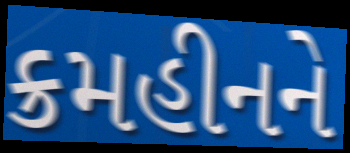
ક્રમહીનને